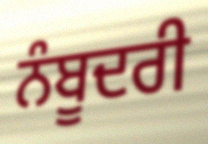
ਨੰਬੂਦਰੀ